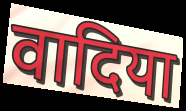
वादिया